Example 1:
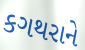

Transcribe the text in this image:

કગથરાને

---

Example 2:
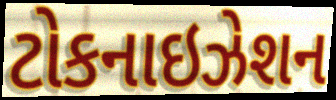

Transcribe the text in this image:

ટોકનાઇઝેશન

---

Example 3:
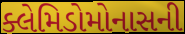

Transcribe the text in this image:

ક્લેમિડોમોનાસની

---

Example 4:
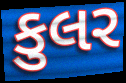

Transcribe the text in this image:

કુલર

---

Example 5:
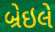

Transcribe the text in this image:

બ્રેઇલે